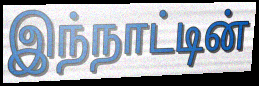
இந்நாட்டின்